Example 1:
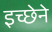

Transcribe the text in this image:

इच्छेने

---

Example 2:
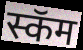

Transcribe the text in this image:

स्कॅम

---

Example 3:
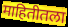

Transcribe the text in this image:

माहितीतला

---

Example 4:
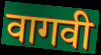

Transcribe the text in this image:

वागवी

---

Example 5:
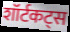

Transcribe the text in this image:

शॉर्टकट्स